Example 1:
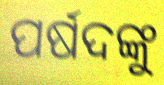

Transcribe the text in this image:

ପର୍ଷଦଙ୍କୁ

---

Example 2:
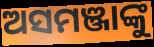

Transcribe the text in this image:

ଅସମଞ୍ଜାଙ୍କୁ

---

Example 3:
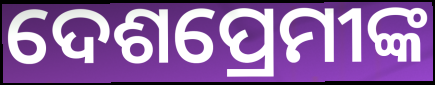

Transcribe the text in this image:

ଦେଶପ୍ରେମୀଙ୍କ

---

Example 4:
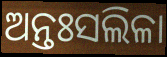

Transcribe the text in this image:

ଅନ୍ତଃସଲିଳା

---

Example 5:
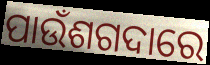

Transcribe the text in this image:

ପାଉଁଶଗଦାରେ